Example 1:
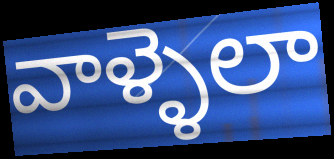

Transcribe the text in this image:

వాళ్ళెలా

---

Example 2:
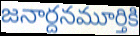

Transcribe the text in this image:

జనార్దనమూర్తికి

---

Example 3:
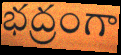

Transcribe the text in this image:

భద్రంగా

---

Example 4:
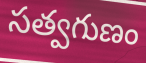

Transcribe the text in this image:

సత్వగుణం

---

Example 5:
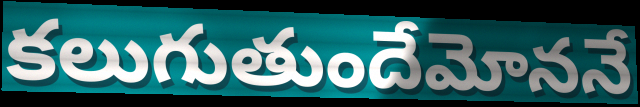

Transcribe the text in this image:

కలుగుతుందేమోననే